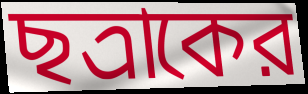
ছত্রাকের